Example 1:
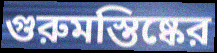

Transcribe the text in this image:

গুরুমস্তিষ্কের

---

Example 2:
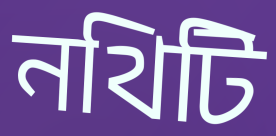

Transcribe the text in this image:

নথিটি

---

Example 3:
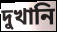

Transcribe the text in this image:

দুখানি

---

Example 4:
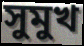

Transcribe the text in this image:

সুমুখ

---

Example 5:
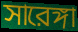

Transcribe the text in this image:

সারেঙ্গা